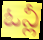
ఓన్లీ